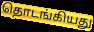
தொடங்கியது